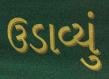
ઉડાવ્યું